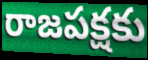
రాజపక్షకు